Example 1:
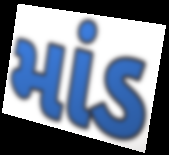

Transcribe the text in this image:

માંડ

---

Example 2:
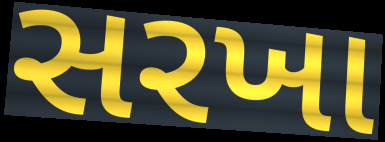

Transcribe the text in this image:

સરખા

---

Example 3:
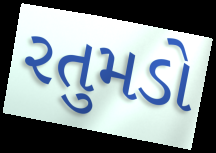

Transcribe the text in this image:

રતુમડો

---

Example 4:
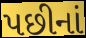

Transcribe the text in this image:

પછીનાં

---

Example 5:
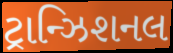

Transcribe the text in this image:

ટ્રાન્ઝિશનલ